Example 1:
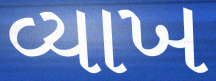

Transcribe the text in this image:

વ્યાખ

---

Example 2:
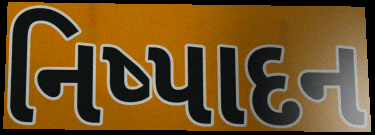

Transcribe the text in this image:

નિષ્પાદન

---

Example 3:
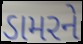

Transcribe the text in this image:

ડામરને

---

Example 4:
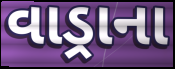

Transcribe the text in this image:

વાડ્રાના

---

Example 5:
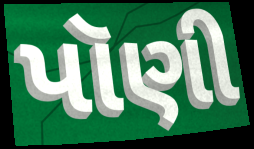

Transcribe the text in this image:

પૉણી